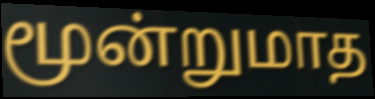
மூன்றுமாத